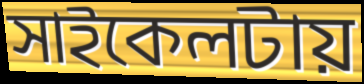
সাইকেলটায়